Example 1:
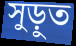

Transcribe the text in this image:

সুড়ুত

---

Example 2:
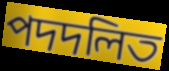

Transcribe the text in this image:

পদদলিত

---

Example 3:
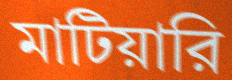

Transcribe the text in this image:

মাটিয়ারি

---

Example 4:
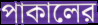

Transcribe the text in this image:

পাকালের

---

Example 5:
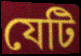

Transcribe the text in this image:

যেটি